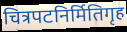
चित्रपटनिर्मितिगृह